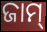
ଜାମ୍